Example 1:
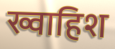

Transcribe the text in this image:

ख्वाहिश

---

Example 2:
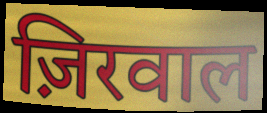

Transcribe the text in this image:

ज़िरवाल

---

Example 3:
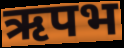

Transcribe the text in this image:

ऋपभ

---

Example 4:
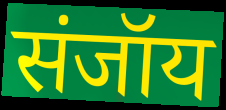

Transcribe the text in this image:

संजॉय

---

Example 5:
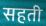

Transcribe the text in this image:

सहती